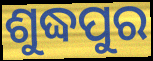
ଶୁଦ୍ଧପୁର